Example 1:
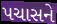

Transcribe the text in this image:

પચાસને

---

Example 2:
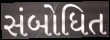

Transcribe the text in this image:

સંબોધિત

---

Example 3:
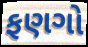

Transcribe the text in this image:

ફણગો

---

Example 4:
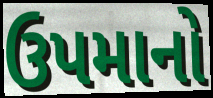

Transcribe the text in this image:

ઉપમાનો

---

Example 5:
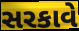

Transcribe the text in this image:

સરકાવે